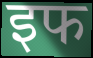
इफ